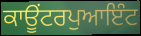
ਕਾਊਂਟਰਪੁਆਇੰਟ